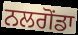
ਨਲਗੋਂਡਾ